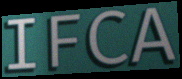
IFCA